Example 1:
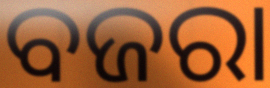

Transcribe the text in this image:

ବଜରା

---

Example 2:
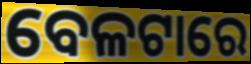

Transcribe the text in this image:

ବେଳଟାରେ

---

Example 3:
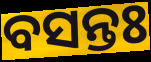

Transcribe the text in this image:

ବସନ୍ତଃ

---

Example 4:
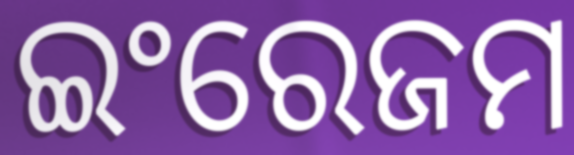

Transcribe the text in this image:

ଇଂରେଜମ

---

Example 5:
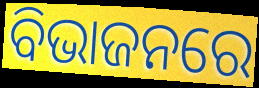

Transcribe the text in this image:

ବିଭାଜନରେ